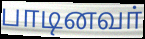
பாடினவர்